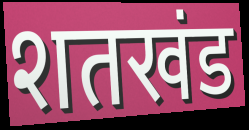
शतखंड